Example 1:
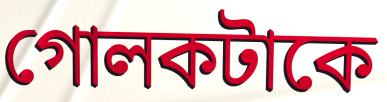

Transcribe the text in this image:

গোলকটাকে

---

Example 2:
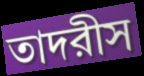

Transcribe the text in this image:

তাদরীস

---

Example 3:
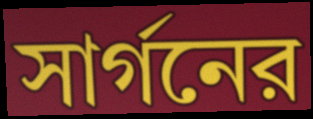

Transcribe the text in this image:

সার্গনের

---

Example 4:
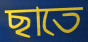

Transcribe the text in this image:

ছাতে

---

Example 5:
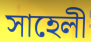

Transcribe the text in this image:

সাহেলী